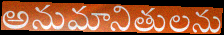
అనుమానితులను